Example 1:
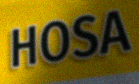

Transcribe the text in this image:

HOSA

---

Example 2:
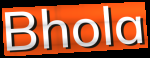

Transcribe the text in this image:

Bhola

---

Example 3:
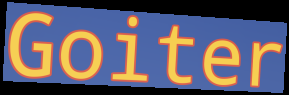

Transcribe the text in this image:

Goiter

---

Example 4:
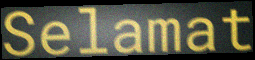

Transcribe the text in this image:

Selamat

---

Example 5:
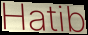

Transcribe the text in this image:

Hatib